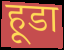
हूडा